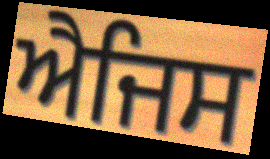
ਐਜਿਸ